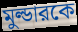
মুল্ডারকে